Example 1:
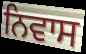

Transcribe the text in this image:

ਨਿਵਾਸ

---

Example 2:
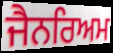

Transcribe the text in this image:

ਜੈਨਰਿਅਮ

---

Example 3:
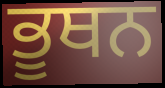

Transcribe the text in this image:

ਭੂਥਨ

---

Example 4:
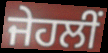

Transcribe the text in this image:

ਜੇਹਲੀਂ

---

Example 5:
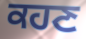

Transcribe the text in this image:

ਕਹਣ